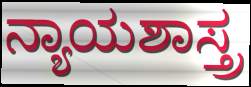
ನ್ಯಾಯಶಾಸ್ತ್ರ